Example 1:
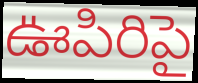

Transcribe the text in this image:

ఊపిరిపై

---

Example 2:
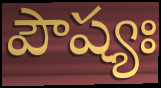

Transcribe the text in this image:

పౌష్యః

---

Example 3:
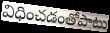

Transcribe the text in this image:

విధించడంతోపాటు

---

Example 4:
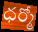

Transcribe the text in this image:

ధర్మో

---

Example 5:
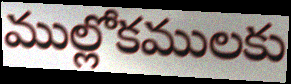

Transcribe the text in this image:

ముల్లోకములకు